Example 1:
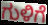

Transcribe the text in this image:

ಗುಳಿಗೆ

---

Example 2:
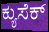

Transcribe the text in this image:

ಕ್ಯುಸೆಕ್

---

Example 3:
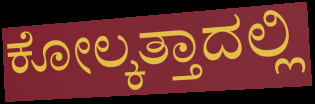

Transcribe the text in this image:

ಕೋಲ್ಕತ್ತಾದಲ್ಲಿ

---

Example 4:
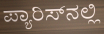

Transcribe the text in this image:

ಪ್ಯಾರಿಸ್‌ನಲ್ಲಿ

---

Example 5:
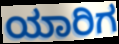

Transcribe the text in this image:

ಯಾರಿಗ